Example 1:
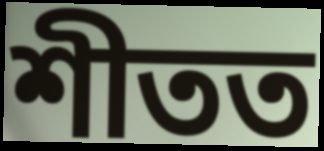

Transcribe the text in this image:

শীতত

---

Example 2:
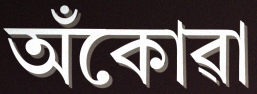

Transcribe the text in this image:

অঁকোৱা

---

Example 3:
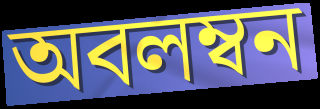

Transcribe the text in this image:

অবলম্বন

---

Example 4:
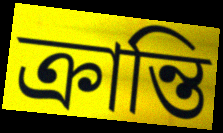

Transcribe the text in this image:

ক্ৰান্তি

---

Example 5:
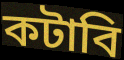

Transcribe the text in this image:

কটাবি